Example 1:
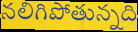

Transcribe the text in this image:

నలిగిపోతున్నది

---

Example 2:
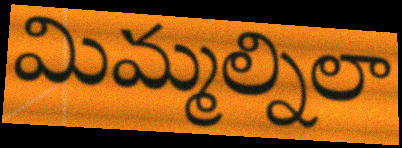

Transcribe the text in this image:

మిమ్మల్నిలా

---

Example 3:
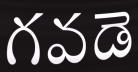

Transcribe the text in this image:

గవడె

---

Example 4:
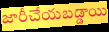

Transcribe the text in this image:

జారీచేయబడ్డాయి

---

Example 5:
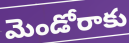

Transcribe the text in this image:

మెండోరాకు